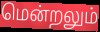
மென்றலும்